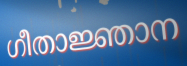
ഗീതാജ്ഞാന